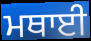
ਮਥਾਈ